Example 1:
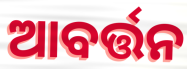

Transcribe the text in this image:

ଆବର୍ତ୍ତନ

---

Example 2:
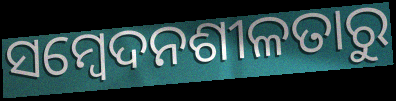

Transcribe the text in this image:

ସମ୍ବେଦନଶୀଳତାରୁ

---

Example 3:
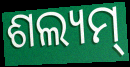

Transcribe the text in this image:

ଶଲ୍ୟମ୍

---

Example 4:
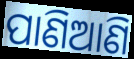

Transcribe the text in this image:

ପାଣିଆଣି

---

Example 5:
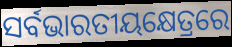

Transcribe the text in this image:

ସର୍ବଭାରତୀୟକ୍ଷେତ୍ରରେ